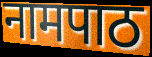
नामपाठ